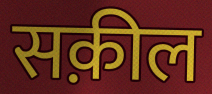
सक़ील